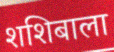
शशिबाला